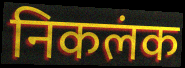
निकलंक